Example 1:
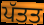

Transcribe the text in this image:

ਪੱਤਤ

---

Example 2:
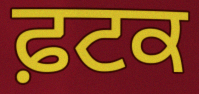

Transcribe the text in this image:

ਫ਼ਟਕ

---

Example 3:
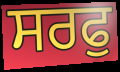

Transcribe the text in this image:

ਸਰਫੁ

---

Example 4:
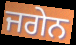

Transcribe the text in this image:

ਜਗੇਨ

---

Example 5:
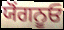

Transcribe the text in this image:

ਯੋਂਗਨੂਓ